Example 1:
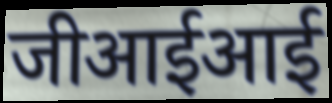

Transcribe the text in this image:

जीआईआई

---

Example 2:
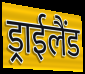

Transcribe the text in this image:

ड्राईलैंड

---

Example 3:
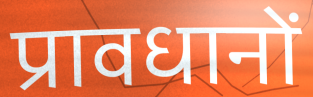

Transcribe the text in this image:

प्रावधानों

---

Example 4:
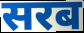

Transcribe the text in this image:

सरब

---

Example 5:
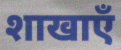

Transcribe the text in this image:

शाखाएँ